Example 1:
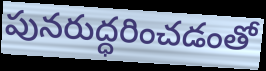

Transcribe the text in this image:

పునరుద్ధరించడంతో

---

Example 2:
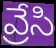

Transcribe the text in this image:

వ్రేసి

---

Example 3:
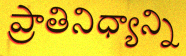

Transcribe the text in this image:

ప్రాతినిధ్యాన్ని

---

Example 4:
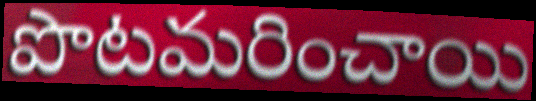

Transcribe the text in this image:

పొటమరించాయి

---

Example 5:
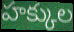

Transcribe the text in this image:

హక్కుల